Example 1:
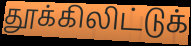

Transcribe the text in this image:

தூக்கிலிட்டுக்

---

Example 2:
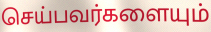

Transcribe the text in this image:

செய்பவர்களையும்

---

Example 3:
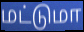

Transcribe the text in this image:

மட்டுமா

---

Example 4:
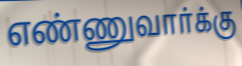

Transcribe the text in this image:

எண்ணுவார்க்கு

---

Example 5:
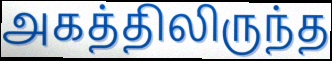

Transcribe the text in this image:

அகத்திலிருந்த